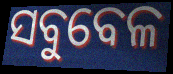
ସବୁବେଳ